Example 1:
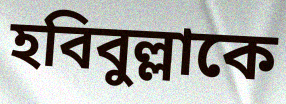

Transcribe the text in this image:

হবিবুল্লাকে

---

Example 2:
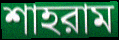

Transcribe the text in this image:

শাহরাম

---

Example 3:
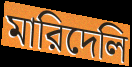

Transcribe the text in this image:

মারিদেলি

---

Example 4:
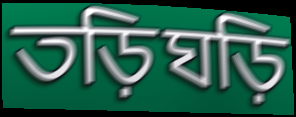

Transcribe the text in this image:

তড়িঘড়ি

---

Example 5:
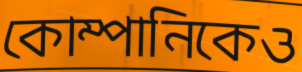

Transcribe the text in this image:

কোম্পানিকেও